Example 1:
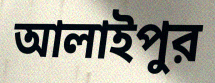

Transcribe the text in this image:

আলাইপুর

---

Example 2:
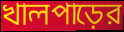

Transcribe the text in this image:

খালপাড়ের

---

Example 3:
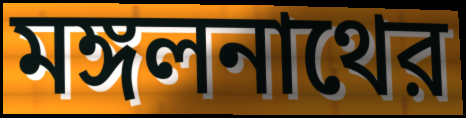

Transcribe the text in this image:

মঙ্গলনাথের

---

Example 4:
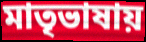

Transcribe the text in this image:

মাতৃভাষায়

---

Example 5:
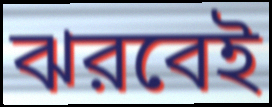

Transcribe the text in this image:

ঝরবেই